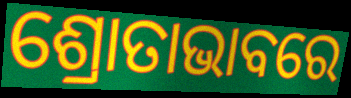
ଶ୍ରୋତାଭାବରେ